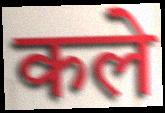
कले